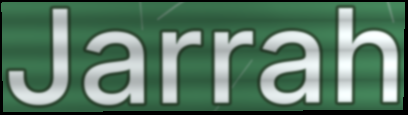
Jarrah